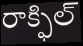
రాక్ఫిల్